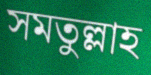
সমতুল্লাহ